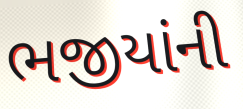
ભજીયાંની